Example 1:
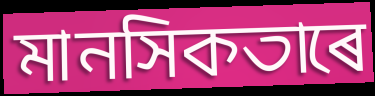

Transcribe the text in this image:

মানসিকতাৰে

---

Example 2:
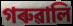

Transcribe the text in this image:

গৰুৱালি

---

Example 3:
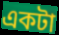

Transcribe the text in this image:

একটা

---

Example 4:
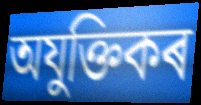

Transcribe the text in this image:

অযুক্তিকৰ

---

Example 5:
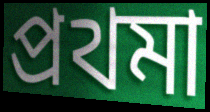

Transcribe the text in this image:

প্ৰথমা